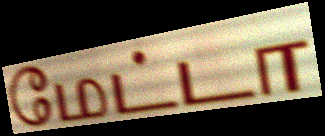
மேட்டா